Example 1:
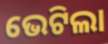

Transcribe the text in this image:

ଭେଟିଲା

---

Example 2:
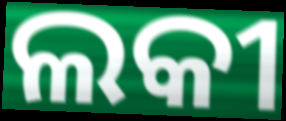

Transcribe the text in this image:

ଲକୀ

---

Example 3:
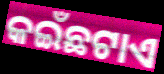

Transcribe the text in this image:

କଇଁଛଟାଏ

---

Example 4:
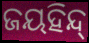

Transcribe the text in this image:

ଜୟହିନ୍ଦ୍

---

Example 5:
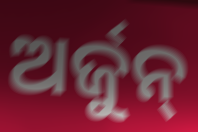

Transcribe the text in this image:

ଅର୍ଜୁନ୍